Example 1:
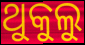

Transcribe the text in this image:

ଥୁକୁଲୁ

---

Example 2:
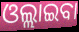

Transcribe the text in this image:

ଓଲ୍ଲାଇବା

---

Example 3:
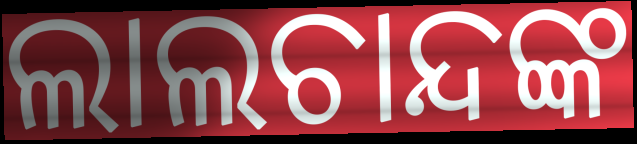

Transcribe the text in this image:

ଲାଲଚାନ୍ଦଙ୍କ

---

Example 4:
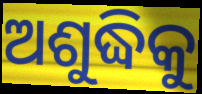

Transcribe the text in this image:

ଅଶୁଦ୍ଧିକୁ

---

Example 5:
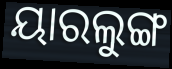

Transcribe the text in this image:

ୟାରଲୁଙ୍ଗ